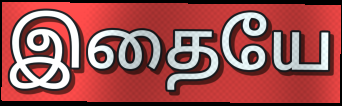
இதையே